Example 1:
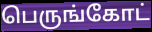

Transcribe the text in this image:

பெருங்கோட்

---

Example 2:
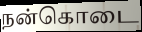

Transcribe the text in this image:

நன்கொடை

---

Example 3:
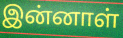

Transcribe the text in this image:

இன்னாள்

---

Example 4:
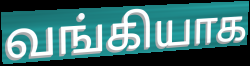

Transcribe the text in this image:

வங்கியாக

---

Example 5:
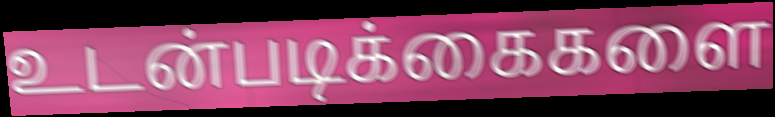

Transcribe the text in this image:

உடன்படிக்கைகளை